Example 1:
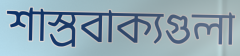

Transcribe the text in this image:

শাস্ত্রবাক্যগুলা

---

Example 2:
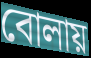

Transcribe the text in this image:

বোলায়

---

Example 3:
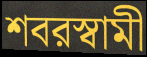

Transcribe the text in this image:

শবরস্বামী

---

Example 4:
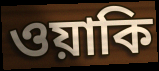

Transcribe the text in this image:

ওয়াকি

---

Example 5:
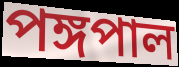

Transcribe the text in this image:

পঙ্গপাল